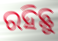
ରହିଛୁ